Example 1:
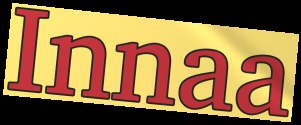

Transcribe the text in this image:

Innaa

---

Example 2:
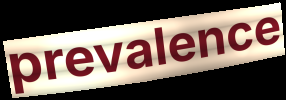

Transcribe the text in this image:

prevalence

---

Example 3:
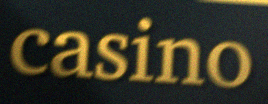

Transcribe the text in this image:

casino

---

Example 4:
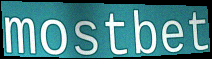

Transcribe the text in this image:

mostbet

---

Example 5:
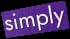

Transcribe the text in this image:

simply